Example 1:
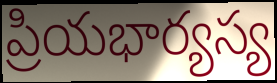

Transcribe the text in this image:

ప్రియభార్యస్య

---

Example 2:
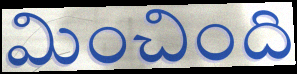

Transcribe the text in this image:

మించింది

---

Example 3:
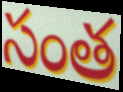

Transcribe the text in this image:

సంత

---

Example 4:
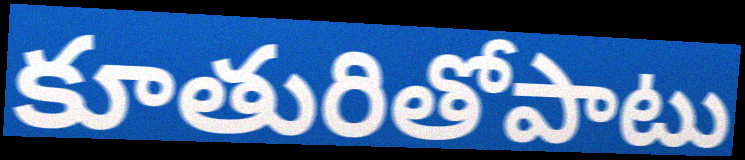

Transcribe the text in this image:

కూతురితోపాటు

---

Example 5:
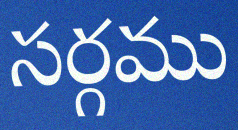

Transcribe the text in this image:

సర్గము